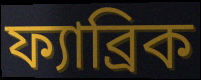
ফ্যাব্রিক